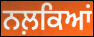
ਨਲ਼ਕਿਆਂ